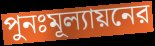
পুনঃমূল্যায়নের